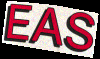
EAS